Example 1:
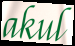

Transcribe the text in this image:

akul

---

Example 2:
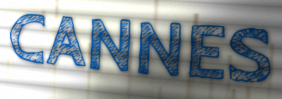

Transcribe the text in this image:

CANNES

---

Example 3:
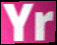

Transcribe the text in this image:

Yr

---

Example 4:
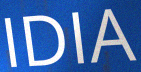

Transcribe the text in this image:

IDIA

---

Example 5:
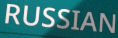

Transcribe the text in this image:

RUSSIAN